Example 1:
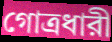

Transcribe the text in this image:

গোত্রধারী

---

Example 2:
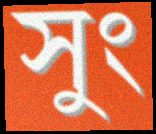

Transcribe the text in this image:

সুং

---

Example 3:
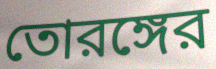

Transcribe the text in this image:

তোরঙ্গের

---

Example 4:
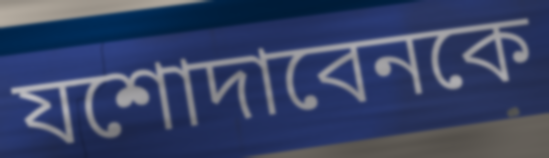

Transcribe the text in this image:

যশোদাবেনকে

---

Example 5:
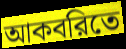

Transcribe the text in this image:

আকবরিতে